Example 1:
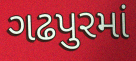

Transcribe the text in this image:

ગઢપુરમાં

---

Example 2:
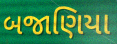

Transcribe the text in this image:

બજાણિયા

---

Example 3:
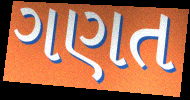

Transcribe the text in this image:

ગણત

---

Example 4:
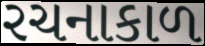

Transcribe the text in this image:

રચનાકાળ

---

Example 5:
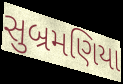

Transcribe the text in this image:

સુબ્રમણિયા